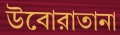
উবোরাতানা